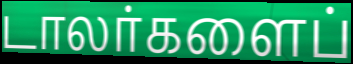
டாலர்களைப்